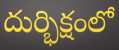
దుర్భిక్షంలో